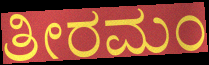
ತೀರಮಂ